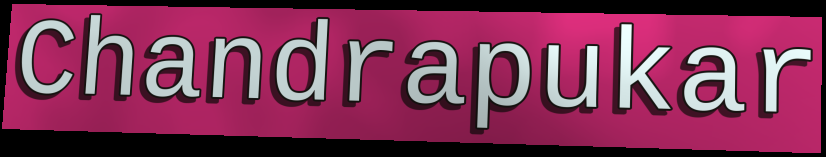
Chandrapukar